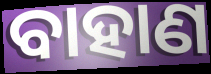
ବାହାଣ